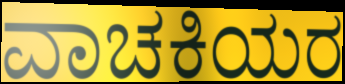
ವಾಚಕಿಯರ